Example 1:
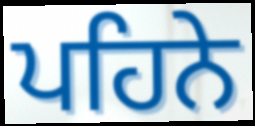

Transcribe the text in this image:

ਪਹਿਨੇ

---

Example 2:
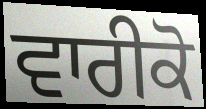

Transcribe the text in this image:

ਵਾਰੀਕੋ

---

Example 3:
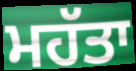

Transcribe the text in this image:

ਮਹੱਤਾ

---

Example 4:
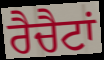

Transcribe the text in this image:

ਰੈਚੈਟਾਂ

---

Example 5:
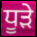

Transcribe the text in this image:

ਧੂੜੇ